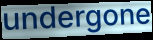
undergone